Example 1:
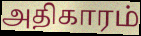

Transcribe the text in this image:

அதிகாரம்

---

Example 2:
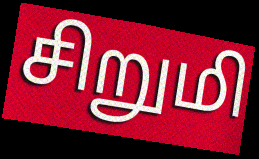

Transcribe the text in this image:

சிறுமி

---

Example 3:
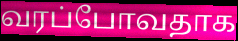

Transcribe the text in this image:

வரப்போவதாக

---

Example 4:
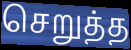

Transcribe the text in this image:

செறுத்த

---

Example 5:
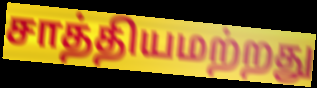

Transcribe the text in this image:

சாத்தியமற்றது